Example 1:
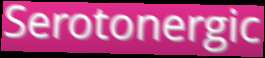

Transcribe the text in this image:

Serotonergic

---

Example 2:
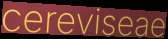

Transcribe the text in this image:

cereviseae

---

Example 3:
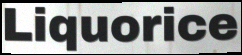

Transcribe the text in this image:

Liquorice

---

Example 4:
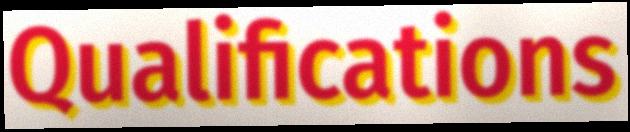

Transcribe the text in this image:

Qualifications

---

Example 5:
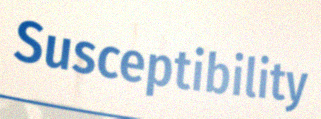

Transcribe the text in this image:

Susceptibility